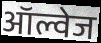
ऑल्वेज